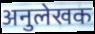
अनुलेखक